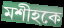
মশীহকে